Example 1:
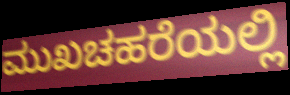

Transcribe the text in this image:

ಮುಖಚಹರೆಯಲ್ಲಿ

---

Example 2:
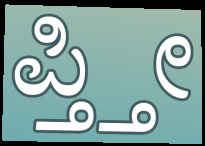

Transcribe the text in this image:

ಪ್ತ್ತೀ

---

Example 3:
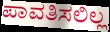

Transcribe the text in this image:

ಪಾವತಿಸಲಿಲ್ಲ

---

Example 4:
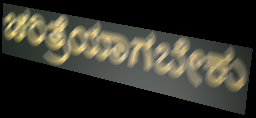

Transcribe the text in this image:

ಚರಿತ್ರೆಯಾಗಬೇಕು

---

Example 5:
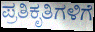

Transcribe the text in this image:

ಪ್ರತಿಕೃತಿಗಳಿಗೆ